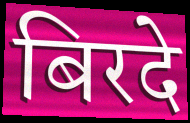
बिरदे